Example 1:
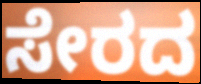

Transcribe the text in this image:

ಸೇರದ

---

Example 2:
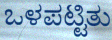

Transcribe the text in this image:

ಒಳಪಟ್ಟಿತು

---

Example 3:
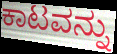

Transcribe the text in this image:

ಕಾಟವನ್ನು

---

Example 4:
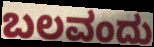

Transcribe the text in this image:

ಬಲವಂದು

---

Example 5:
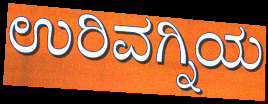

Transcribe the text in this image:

ಉರಿವಗ್ನಿಯ